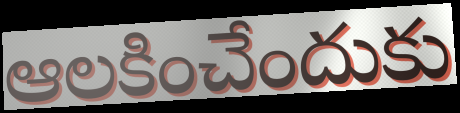
ఆలకించేందుకు